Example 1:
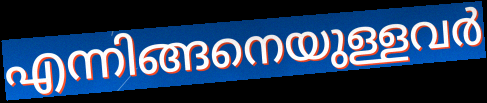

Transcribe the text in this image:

എന്നിങ്ങനെയുള്ളവർ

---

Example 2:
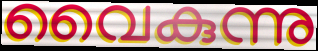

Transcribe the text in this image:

വൈകുന്നു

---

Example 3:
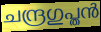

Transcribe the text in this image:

ചന്ദ്രഗുപ്തൻ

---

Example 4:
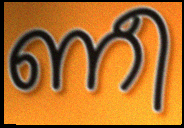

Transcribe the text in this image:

ണീ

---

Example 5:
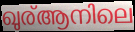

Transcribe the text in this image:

ഖുര്ആനിലെ